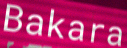
Bakara